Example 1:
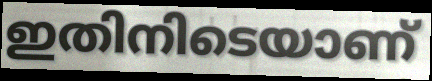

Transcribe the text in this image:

ഇതിനിടെയാണ്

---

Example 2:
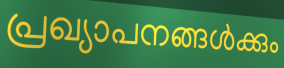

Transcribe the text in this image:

പ്രഖ്യാപനങ്ങൾക്കും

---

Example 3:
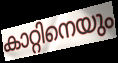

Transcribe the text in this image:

കാറ്റിനെയും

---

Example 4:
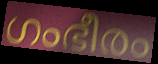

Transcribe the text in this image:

ഗംഭീരം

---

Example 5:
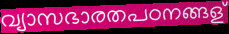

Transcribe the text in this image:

വ്യാസഭാരതപഠനങ്ങള്